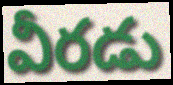
వీరడు